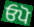
ਓਪੋ